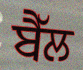
ਬੈੱਲ